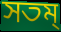
সতম্